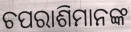
ଚପରାଶିମାନଙ୍କ